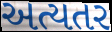
અત્યતર